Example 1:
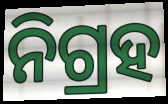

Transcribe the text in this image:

ନିଗ୍ରହ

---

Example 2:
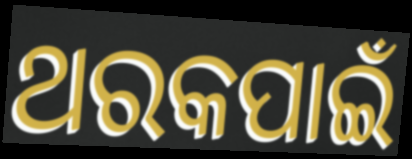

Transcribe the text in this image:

ଥରକପାଇଁ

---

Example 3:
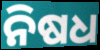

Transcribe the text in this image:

ନିଷଧ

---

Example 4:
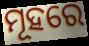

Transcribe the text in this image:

ମୂହରେ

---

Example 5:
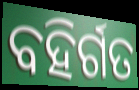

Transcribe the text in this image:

ବହିର୍ଗତ